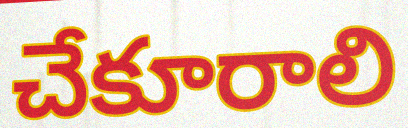
చేకూరాలి